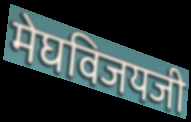
मेघविजयजी